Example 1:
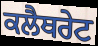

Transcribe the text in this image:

ਕਲੈਥਰੇਟ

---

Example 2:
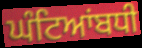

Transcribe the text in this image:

ਘੰਟਿਆਂਬਧੀ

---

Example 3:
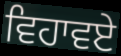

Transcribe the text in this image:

ਵਿਹਾਵਏ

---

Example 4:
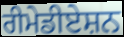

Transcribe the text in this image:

ਰੀਮੇਡੀਏਸ਼ਨ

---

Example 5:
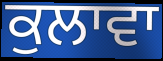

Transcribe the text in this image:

ਕੁਲਾਵਾ